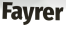
Fayrer